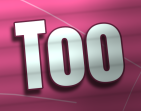
Too